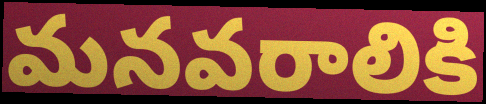
మనవరాలికి